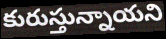
కురుస్తున్నాయని